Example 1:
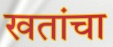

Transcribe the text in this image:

खतांचा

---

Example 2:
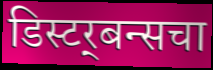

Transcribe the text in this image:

डिस्टर्बन्सचा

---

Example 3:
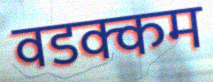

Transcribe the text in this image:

वडक्कम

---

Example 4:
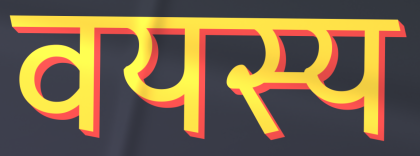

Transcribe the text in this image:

वयस्य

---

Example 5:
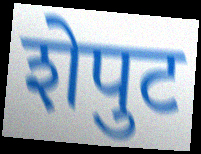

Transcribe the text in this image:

शेपुट